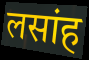
लसांह